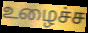
உழைச்ச